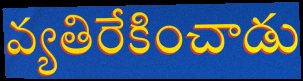
వ్యతిరేకించాడు